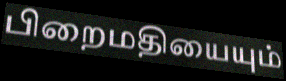
பிறைமதியையும்